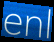
enl